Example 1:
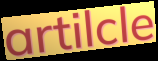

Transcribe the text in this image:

artilcle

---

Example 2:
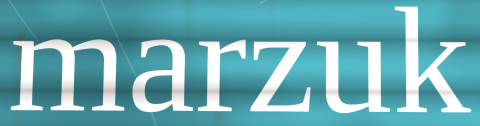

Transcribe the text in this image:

marzuk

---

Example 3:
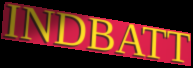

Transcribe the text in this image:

INDBATT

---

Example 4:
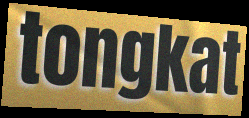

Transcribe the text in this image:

tongkat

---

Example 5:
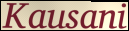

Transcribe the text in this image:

Kausani